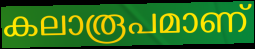
കലാരൂപമാണ്